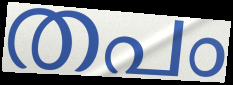
തപം